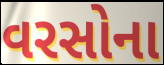
વરસોના